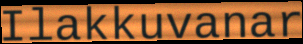
Ilakkuvanar